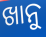
ଖାନୁ